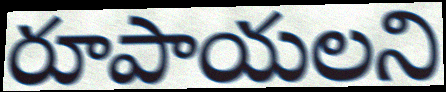
రూపాయలని